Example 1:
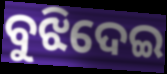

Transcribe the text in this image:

ବୁଝିଦେଇ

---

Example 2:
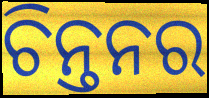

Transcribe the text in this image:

ଚିନ୍ତନର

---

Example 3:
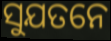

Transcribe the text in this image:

ସୁଯତନେ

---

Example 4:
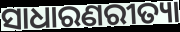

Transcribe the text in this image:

ସାଧାରଣରୀତ୍ୟା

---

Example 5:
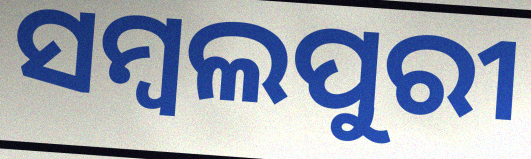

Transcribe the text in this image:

ସମ୍ବଲପୁରୀ